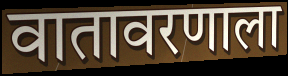
वातावरणाला